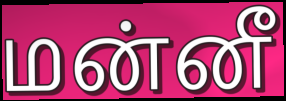
மன்னீ